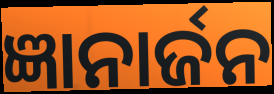
ଜ୍ଞାନାର୍ଜନ